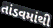
તાંડવમાંથી